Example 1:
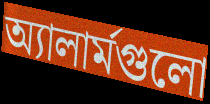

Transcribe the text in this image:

অ্যালার্মগুলো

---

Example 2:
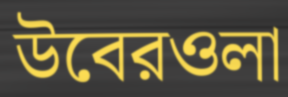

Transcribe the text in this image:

উবেরওলা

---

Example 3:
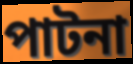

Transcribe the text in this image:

পাটনা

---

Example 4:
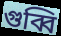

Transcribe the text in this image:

গুব্বি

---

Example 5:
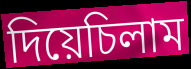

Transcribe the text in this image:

দিয়েচিলাম